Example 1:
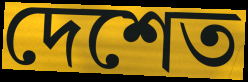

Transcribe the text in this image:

দেশেত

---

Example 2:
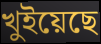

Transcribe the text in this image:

খুইয়েছে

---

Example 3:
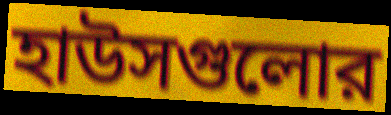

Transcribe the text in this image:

হাউসগুলোর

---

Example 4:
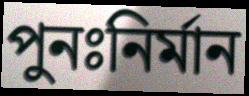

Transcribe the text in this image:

পুনঃনির্মান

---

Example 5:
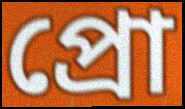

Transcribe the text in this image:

প্রো